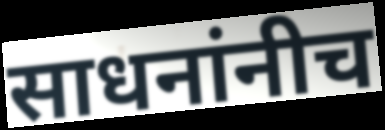
साधनांनीच